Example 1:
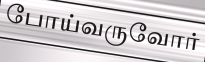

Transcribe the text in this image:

போய்வருவோர்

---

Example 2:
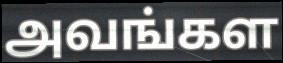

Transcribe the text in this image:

அவங்கள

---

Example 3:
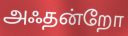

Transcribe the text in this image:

அஃதன்றோ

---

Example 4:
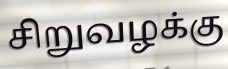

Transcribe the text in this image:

சிறுவழக்கு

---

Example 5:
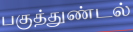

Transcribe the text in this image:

பகுத்துண்டல்